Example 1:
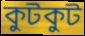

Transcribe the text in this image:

কুটকুট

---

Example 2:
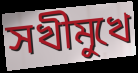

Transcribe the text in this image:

সখীমুখে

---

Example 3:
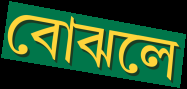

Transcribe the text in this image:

বোঝলে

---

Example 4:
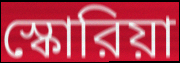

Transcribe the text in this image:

স্কোরিয়া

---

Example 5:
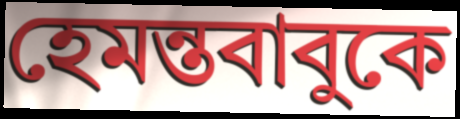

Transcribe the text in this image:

হেমন্তবাবুকে